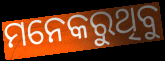
ମନେକରୁଥିବୁ